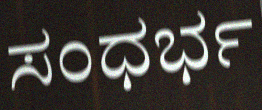
ಸಂಧರ್ಭ